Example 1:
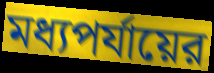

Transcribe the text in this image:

মধ্যপর্যায়ের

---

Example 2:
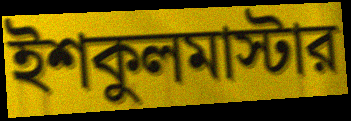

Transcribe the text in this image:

ইশকুলমাস্টার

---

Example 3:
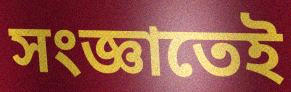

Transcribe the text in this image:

সংজ্ঞাতেই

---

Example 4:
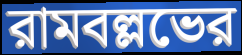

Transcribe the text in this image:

রামবল্লভের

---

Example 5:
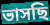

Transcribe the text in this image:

ভাসছি